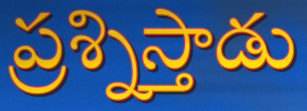
ప్రశ్నిస్తాడు